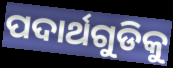
ପଦାର୍ଥଗୁଡିକୁ